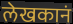
लेखकानं